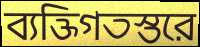
ব্যক্তিগতস্তরে